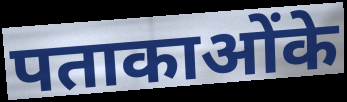
पताकाओंके